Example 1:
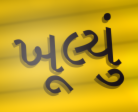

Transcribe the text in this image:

ખૂલ્યું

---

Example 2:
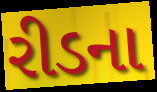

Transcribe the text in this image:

રીડના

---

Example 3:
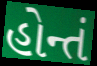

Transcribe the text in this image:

હોન્તં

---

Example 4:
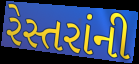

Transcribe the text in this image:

રેસ્તરાંની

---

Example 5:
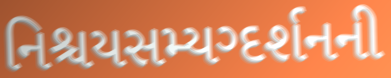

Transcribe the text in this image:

નિશ્ચયસમ્યગ્દર્શનની